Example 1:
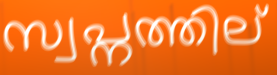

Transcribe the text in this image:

സ്വപ്നത്തില്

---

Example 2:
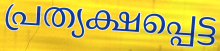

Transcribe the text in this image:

പ്രത്യക്ഷപ്പെട്ട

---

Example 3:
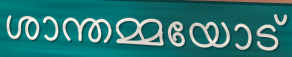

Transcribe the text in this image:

ശാന്തമ്മയോട്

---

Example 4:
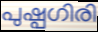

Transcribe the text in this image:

പുഷ്പഗിരി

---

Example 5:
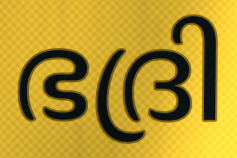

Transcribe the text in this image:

ഭദ്രി